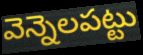
వెన్నెలపట్టు